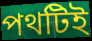
পথটিই